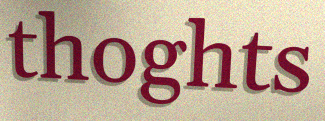
thoghts